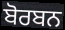
ਬੋਰਬਨ